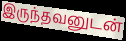
இருந்தவனுடன்